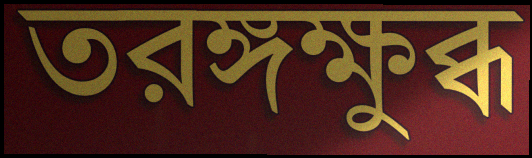
তরঙ্গক্ষুব্ধ